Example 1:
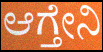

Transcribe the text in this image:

ಆಗ್ತೇನಿ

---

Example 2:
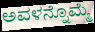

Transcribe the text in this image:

ಅವಳನ್ನೊಮ್ಮೆ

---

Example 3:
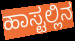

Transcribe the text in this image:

ಹಾಸ್ಟಲ್ಲಿನ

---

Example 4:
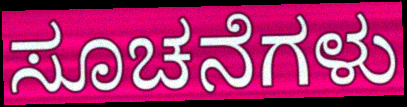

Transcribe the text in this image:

ಸೂಚನೆಗಳು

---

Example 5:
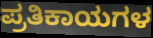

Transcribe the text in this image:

ಪ್ರತಿಕಾಯಗಳ